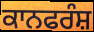
ਕਾਨਫਰੰਸ਼